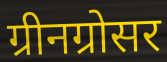
ग्रीनग्रोसर